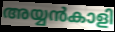
അയ്യൻകാളി